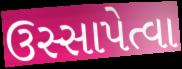
ઉસ્સાપેત્વા